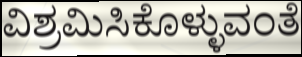
ವಿಶ್ರಮಿಸಿಕೊಳ್ಳುವಂತೆ